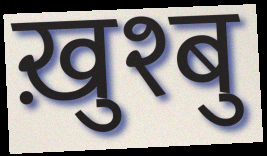
ख़ुश्बु